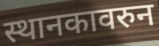
स्थानकावरुन